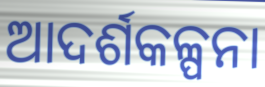
ଆଦର୍ଶକଳ୍ପନା